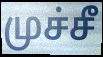
முச்சீ